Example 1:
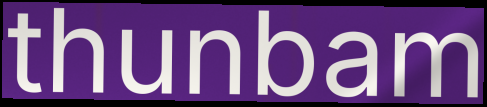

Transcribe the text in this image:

thunbam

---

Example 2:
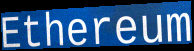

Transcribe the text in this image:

Ethereum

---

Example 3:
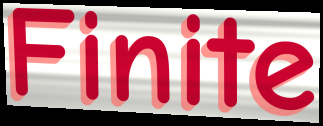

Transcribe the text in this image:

Finite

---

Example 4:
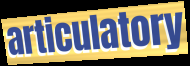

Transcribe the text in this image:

articulatory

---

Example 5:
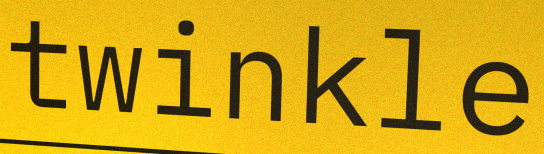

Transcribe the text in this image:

twinkle